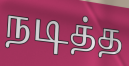
நடித்த